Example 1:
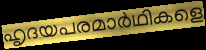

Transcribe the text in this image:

ഹൃദയപരമാർഥികളെ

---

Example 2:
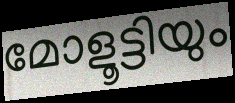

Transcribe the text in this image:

മോളൂട്ടിയും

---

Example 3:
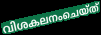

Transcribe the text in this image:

വിശകലനംചെയ്ത്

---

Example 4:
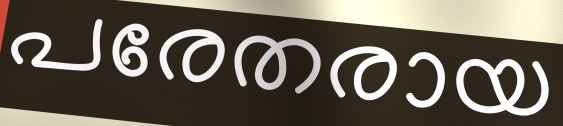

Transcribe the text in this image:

പരേതരായ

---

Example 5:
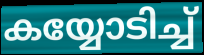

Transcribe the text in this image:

കയ്യോടിച്ച്